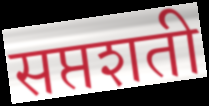
सप्तशती